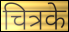
चित्रके